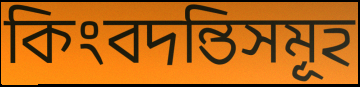
কিংবদন্তিসমূহ